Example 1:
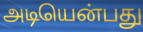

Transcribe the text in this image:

அடியென்பது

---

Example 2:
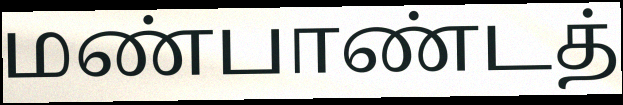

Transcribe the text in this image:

மண்பாண்டத்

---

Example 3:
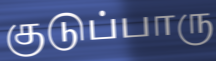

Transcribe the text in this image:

குடுப்பாரு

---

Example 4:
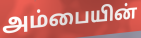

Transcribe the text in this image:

அம்பையின்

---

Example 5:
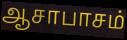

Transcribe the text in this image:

ஆசாபாசம்